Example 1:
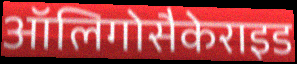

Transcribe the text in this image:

ऑलिगोसैकेराइड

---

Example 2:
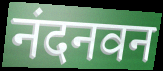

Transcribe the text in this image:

नंदनवन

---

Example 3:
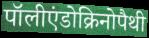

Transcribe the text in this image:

पॉलीएंडोक्रिनोपैथी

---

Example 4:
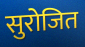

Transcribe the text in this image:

सुरोजित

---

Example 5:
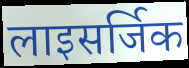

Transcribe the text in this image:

लाइसर्जिक